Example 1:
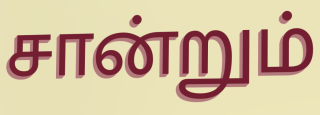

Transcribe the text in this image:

சான்றும்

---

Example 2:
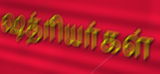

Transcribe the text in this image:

ஷத்ரியர்கள்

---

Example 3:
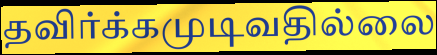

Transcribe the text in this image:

தவிர்க்கமுடிவதில்லை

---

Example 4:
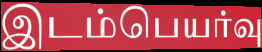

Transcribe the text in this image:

இடம்பெயர்வு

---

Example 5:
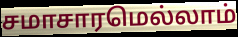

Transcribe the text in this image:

சமாசாரமெல்லாம்